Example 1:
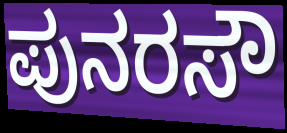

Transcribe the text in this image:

ಪುನರಸೌ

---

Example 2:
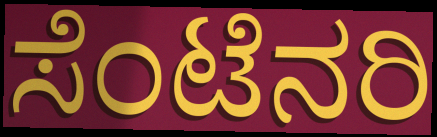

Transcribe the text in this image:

ಸೆಂಟೆನರಿ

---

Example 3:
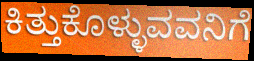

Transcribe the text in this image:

ಕಿತ್ತುಕೊಳ್ಳುವವನಿಗೆ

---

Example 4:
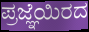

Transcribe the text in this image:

ಪ್ರಜ್ಞೆಯಿರದ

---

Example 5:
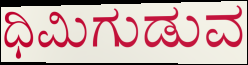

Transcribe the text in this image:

ಧಿಮಿಗುಡುವ